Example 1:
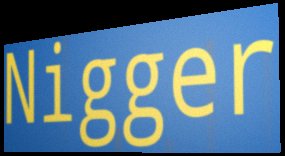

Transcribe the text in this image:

Nigger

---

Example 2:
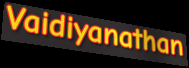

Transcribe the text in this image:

Vaidiyanathan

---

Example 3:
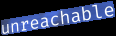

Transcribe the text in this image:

unreachable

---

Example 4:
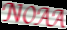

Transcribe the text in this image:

NOAA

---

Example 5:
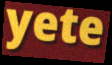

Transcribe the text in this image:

yete